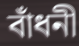
বাঁধনী